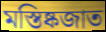
মস্তিষ্কজাত